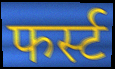
फर्स्ट